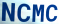
NCMC